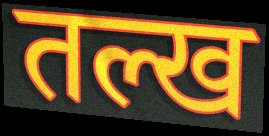
तल्ख